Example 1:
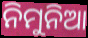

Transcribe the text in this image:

ନିମୁନିଆ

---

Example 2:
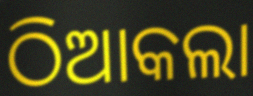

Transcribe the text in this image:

ଠିଆକଲା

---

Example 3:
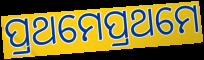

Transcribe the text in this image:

ପ୍ରଥମେପ୍ରଥମେ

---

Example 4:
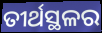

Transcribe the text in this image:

ତୀର୍ଥସ୍ଥଳର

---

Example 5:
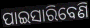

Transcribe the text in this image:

ପାଇସାରିବେଣି